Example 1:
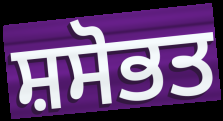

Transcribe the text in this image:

ਸ਼ਸੋਭਤ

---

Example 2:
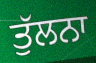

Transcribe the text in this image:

ਤੁੱਲਨਾ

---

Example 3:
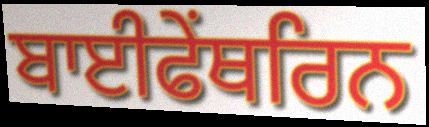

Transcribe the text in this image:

ਬਾਈਫੇਂਥਰਿਨ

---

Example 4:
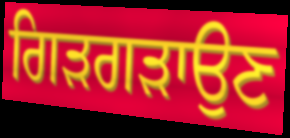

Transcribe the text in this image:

ਗਿੜਗੜਾਉਣ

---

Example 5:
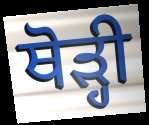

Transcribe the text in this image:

ਥੋਡ਼੍ਹੀ